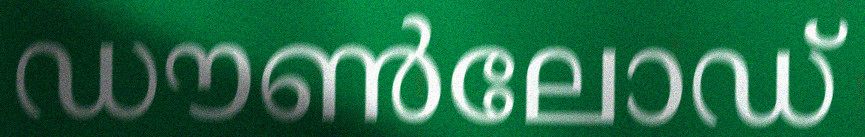
ഡൗൺലോഡ്